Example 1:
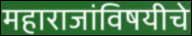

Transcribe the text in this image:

महाराजांविषयीचे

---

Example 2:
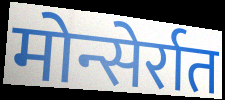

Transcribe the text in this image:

मोन्सेर्रात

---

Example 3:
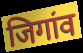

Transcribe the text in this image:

जिगांव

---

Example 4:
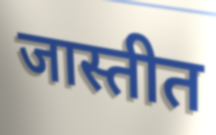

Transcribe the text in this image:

जास्तीत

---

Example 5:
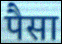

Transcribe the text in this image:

पैसा